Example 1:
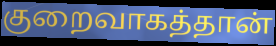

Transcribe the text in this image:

குறைவாகத்தான்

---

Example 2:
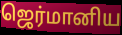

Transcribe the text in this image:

ஜெர்மானிய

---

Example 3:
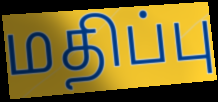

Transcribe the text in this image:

மதிப்பு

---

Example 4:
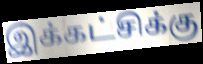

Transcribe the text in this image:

இக்கட்சிக்கு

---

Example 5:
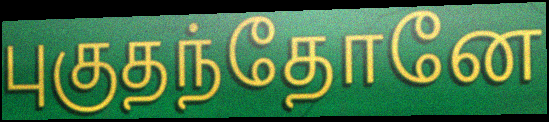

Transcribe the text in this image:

புகுதந்தோனே